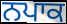
ਨਪਾਕ